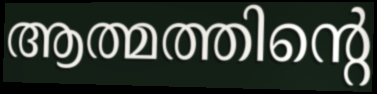
ആത്മത്തിന്റെ